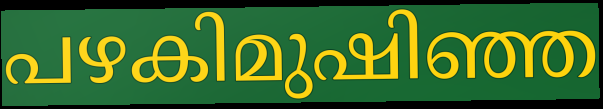
പഴകിമുഷിഞ്ഞ